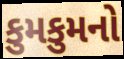
કુમકુમનો